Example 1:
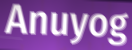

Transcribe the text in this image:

Anuyog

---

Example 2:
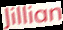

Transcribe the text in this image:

Jillian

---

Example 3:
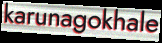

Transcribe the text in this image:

karunagokhale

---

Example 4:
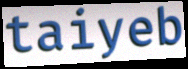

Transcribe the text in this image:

taiyeb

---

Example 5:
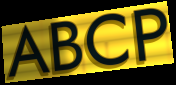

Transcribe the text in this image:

ABCP